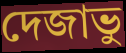
দেজাভু